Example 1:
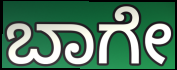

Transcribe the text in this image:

ಬಾಗೇ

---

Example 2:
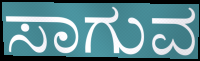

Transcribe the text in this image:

ಸಾಗುವ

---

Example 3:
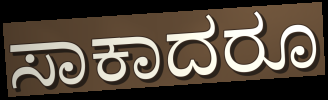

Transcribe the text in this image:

ಸಾಕಾದರೂ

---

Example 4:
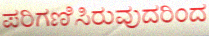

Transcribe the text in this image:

ಪರಿಗಣಿಸಿರುವುದರಿಂದ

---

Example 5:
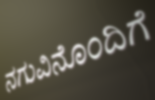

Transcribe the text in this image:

ನಗುವಿನೊಂದಿಗೆ